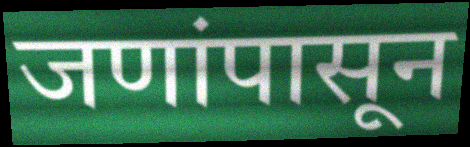
जणांपासून